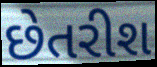
છેતરીશ